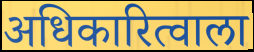
अधिकारित्वाला